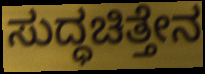
ಸುದ್ಧಚಿತ್ತೇನ